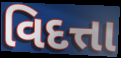
વિદત્તા